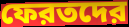
ফেরতদের